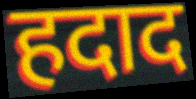
हदाद